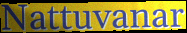
Nattuvanar